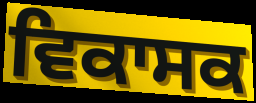
ਵਿਕਾਸਕ